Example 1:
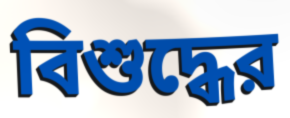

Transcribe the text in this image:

বিশুদ্ধের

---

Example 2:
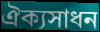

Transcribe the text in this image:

ঐক্যসাধন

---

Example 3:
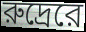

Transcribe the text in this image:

রুদ্রেরে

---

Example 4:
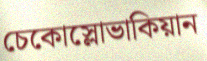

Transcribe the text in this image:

চেকোস্লোভাকিয়ান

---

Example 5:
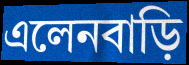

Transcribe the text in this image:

এলেনবাড়ি